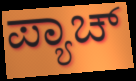
ಪ್ಯಾಚ್